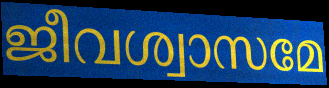
ജീവശ്വാസമേ